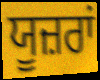
ਯੂਜ਼ਰਾਂ